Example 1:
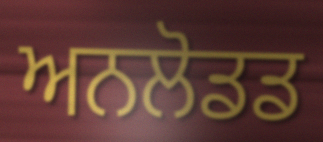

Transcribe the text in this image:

ਅਨਲੋਡਡ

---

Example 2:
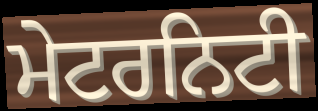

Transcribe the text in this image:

ਮੇਟਰਨਿਟੀ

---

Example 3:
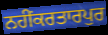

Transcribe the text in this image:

ਨਹੀਂਕਰਤਾਰਪੁਰ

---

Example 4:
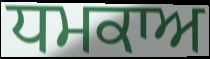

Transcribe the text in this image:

ਧਮਕਾਅ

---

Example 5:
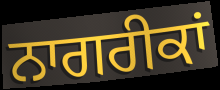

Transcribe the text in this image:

ਨਾਗਰੀਕਾਂ